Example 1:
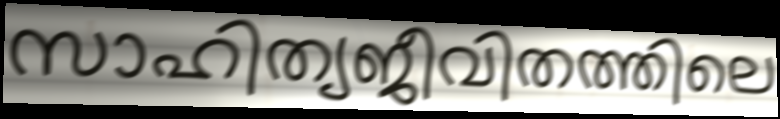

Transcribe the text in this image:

സാഹിത്യജീവിതത്തിലെ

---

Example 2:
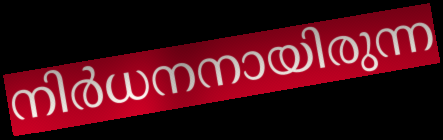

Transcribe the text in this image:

നിർധനനായിരുന്ന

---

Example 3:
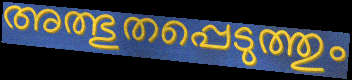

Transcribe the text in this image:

അത്ഭുതപ്പെടുത്തും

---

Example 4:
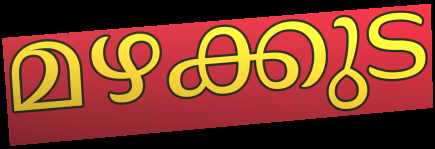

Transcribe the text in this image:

മഴക്കുട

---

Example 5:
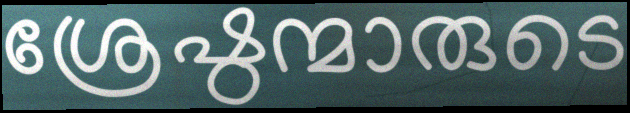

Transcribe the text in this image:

ശ്രേഷ്ഠന്മാരുടെ